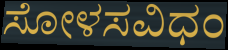
ಸೋಳಸವಿಧಂ